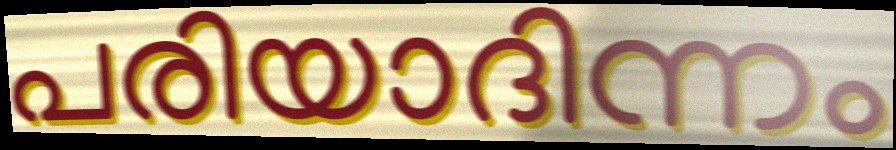
പരിയാദിന്നം